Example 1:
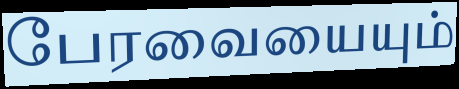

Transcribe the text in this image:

பேரவையையும்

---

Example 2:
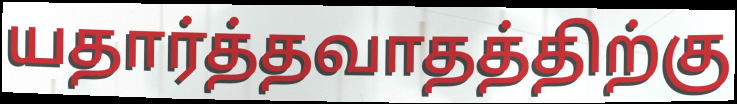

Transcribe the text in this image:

யதார்த்தவாதத்திற்கு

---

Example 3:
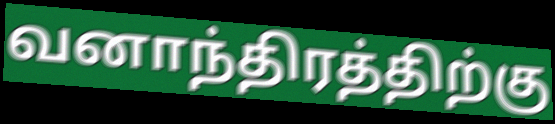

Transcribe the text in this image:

வனாந்திரத்திற்கு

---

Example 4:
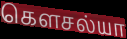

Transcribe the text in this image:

கௌசல்யா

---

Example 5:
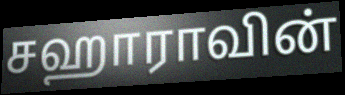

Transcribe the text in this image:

சஹாராவின்